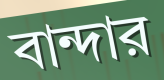
বান্দার